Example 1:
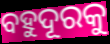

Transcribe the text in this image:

ବହୁଦୂରକୁ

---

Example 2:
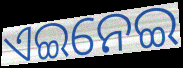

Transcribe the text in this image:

ଏଇନେଇ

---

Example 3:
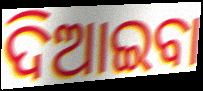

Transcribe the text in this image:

ଦିଆଇବା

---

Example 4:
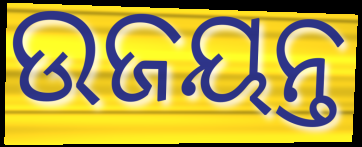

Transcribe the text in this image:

ଉଜୟନ୍ତ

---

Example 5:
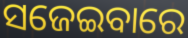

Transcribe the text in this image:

ସଜେଇବାରେ